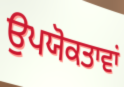
ਉਪਯੋਕਤਾਵਾਂ